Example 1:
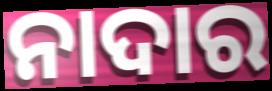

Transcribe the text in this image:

ନାଦାର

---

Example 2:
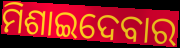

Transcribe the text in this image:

ମିଶାଇଦେବାର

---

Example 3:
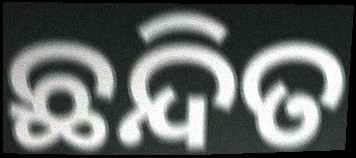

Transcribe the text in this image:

ଛନ୍ଦିତ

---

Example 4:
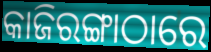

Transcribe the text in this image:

କାଜିରଙ୍ଗାଠାରେ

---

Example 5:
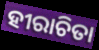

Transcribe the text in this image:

ହୀରାଚିତା